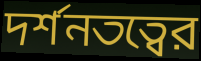
দর্শনতত্বের